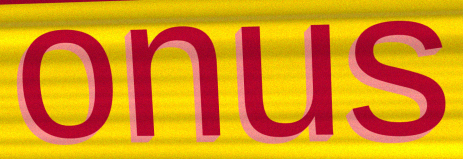
onus